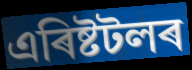
এৰিষ্টটলৰ